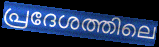
പ്രദേശത്തിലെ